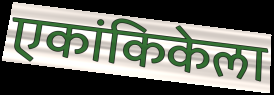
एकांकिकेला